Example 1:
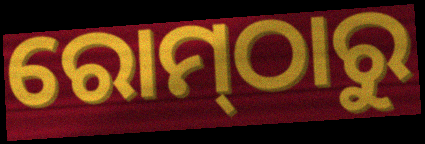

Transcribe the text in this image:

ରୋମ୍‌ଠାରୁ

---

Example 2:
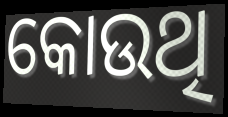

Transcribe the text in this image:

କୋଉଥି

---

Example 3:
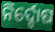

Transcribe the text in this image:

ନିର୍ଦ୍ଦୋଷ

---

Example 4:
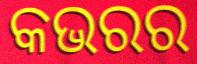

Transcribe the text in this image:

କଭରର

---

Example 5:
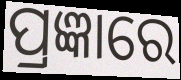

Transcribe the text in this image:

ପ୍ରଜ୍ଞାରେ